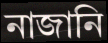
নাজানি